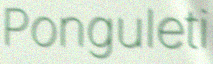
Ponguleti